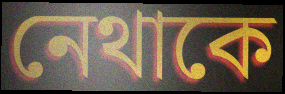
নেথাকে